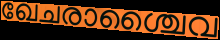
ഖേചരാശ്ചൈവ